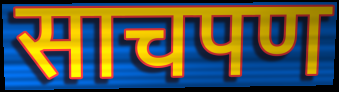
साचपण